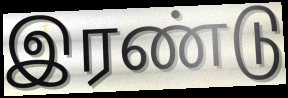
இரண்டு